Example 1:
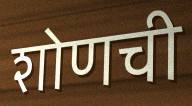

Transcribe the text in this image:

शोणची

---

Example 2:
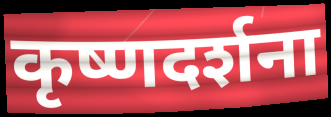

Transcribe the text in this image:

कृष्णदर्शना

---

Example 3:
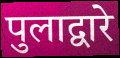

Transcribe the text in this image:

पुलाद्वारे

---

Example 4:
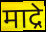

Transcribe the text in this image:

माद्रे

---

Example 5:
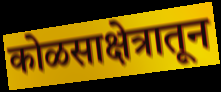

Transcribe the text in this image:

कोळसाक्षेत्रातून